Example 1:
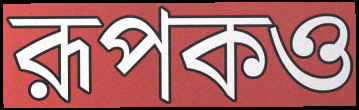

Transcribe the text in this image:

রূপকও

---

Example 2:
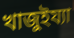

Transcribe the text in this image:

খাজুইয্যা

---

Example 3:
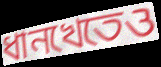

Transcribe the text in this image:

ধানখেতেও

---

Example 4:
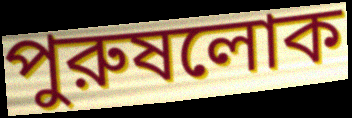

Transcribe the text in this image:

পুরুষলোক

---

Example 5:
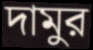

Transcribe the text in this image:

দামুর